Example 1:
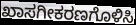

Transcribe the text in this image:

ಖಾಸಗೀಕರಣಗೊಳಿಸಿ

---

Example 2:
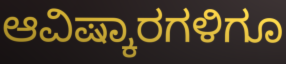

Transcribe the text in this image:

ಆವಿಷ್ಕಾರಗಳಿಗೂ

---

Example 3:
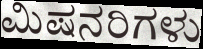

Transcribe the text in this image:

ಮಿಷನರಿಗಳು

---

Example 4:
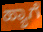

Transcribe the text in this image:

ಹ್ಯಾಗೆ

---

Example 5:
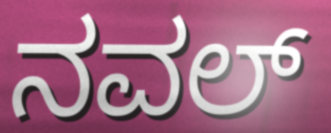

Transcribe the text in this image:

ನವಲ್